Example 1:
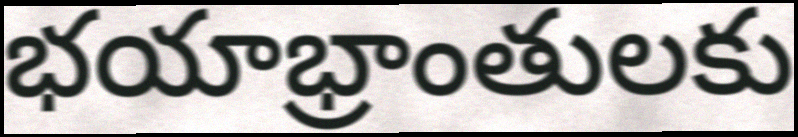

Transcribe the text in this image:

భయాభ్రాంతులకు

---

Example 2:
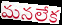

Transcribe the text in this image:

మనలేక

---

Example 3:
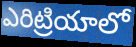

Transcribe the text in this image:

ఎరిట్రియాలో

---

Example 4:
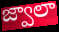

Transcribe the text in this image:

జ్వాలా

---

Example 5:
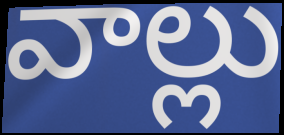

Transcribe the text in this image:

వాల్లు